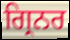
ਗ੍ਰਿਨਰ